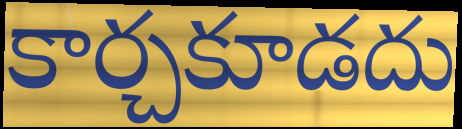
కార్చకూడదు